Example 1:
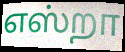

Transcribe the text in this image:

எஸ்றா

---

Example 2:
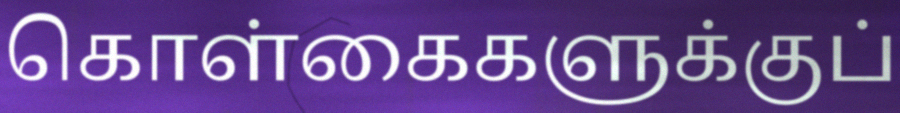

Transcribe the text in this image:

கொள்கைகளுக்குப்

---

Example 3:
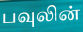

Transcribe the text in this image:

பவுலின்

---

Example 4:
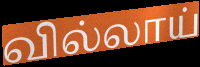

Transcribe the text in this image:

வில்லாய்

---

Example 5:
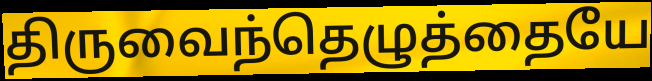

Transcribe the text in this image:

திருவைந்தெழுத்தையே